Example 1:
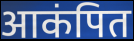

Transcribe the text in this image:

आकंपित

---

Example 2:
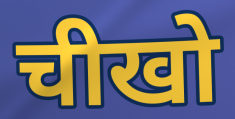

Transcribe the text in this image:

चीखो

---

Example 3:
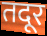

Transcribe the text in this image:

तदूर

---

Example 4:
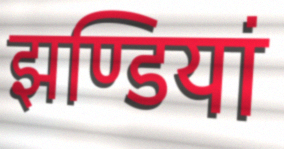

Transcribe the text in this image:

झण्डियां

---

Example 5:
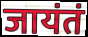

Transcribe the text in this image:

जायंतं